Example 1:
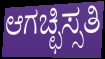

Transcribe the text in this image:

ಆಗಚ್ಛಿಸ್ಸತಿ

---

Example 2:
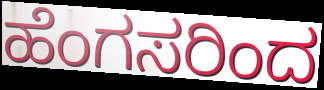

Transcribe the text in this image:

ಹೆಂಗಸರಿಂದ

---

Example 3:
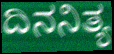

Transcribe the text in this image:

ದಿನನಿತ್ಯ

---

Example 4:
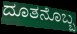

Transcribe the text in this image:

ದೂತನೊಬ್ಬ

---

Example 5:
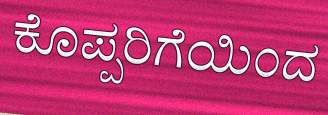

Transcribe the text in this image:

ಕೊಪ್ಪರಿಗೆಯಿಂದ